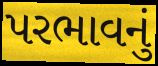
પરભાવનું